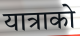
यात्राको